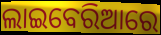
ଲାଇବେରିଆରେ